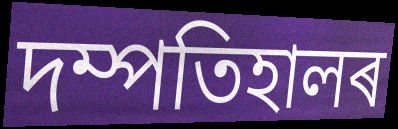
দম্পতিহালৰ